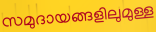
സമുദായങ്ങളിലുമുള്ള